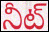
నీట్